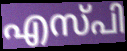
എസ്പി